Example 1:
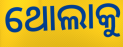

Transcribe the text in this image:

ଥୋଲାକୁ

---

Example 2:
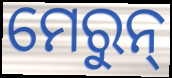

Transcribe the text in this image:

ମେରୁନ୍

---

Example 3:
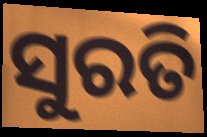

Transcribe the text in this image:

ସୁରତି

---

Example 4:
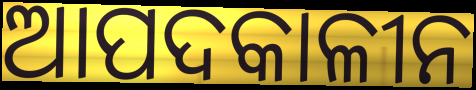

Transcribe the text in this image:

ଆପଦକାଳୀନ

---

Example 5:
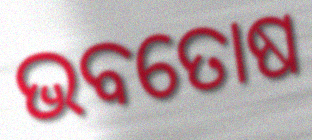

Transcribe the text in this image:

ଭବତୋଷ